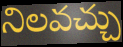
నిలవచ్చు